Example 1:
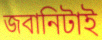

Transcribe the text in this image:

জবানিটাই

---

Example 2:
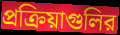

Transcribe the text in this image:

প্রক্রিয়াগুলির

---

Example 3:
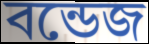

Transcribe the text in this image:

বন্ডেজ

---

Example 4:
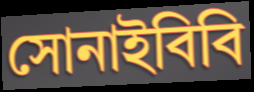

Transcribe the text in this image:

সোনাইবিবি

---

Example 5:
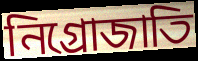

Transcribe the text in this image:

নিগ্রোজাতি